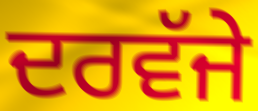
ਦਰਵੱਜੇ